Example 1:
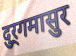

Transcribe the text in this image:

दुर्गमासुर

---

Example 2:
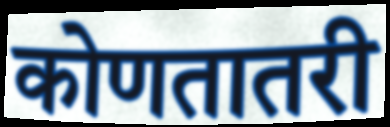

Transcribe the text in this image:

कोणतातरी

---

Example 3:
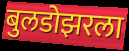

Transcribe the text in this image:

बुलडोझरला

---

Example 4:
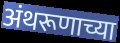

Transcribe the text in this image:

अंथरूणाच्या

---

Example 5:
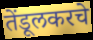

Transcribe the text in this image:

तेंडूलकरचे